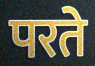
परते